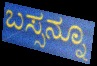
ಬಸ್ಸನ್ನೂ